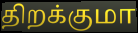
திறக்குமா